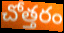
చోత్తరం